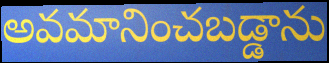
అవమానించబడ్డాను